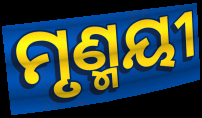
ମୃଣ୍ମୟୀ